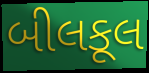
બીલકૂલ